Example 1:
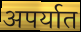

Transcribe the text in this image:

अपर्यात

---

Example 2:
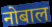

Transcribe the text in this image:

नोबाल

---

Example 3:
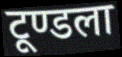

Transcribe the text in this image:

टूण्डला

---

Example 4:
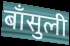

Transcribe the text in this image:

बाँसुली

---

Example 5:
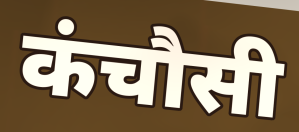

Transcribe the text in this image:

कंचौसी